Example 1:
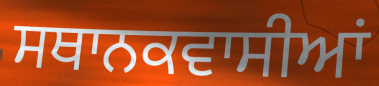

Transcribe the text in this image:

ਸਥਾਨਕਵਾਸੀਆਂ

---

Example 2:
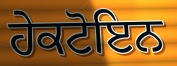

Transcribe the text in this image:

ਹੇਕਟੋਇਨ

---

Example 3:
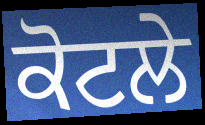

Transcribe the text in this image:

ਕੋਟਲੇ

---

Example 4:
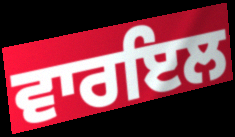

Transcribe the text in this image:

ਵਾਰਇਲ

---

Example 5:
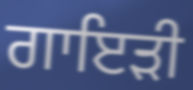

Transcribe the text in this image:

ਗਾਇੜੀ